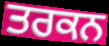
ਤਰਕਨ